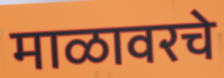
माळावरचे